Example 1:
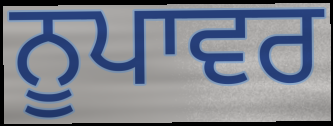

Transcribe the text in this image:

ਨੂਪਾਵਰ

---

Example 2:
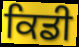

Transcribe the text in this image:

ਕਿਡੀ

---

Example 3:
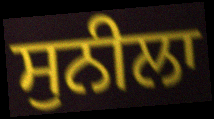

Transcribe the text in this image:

ਸੁਨੀਲਾ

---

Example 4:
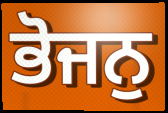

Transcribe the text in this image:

ਭੋਜਨੁ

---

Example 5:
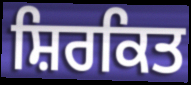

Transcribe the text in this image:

ਸ਼ਿਰਕਿਤ